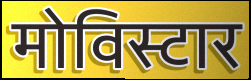
मोविस्टार